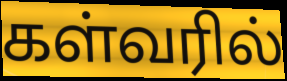
கள்வரில்